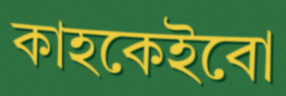
কাহকেইবো